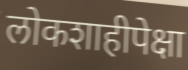
लोकशाहीपेक्षा